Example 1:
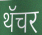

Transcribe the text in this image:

थॅचर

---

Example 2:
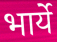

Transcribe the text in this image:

भार्ये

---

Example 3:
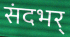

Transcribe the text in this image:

संदभर्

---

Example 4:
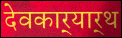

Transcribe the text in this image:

देवकार्यार्थ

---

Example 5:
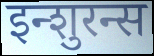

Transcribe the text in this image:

इन्शुरन्स